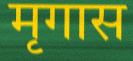
मृगास